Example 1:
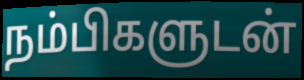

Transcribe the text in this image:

நம்பிகளுடன்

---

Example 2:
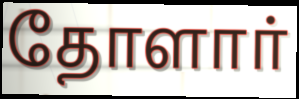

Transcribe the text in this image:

தோளார்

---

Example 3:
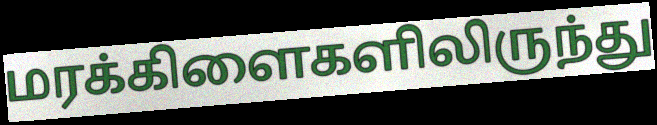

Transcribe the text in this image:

மரக்கிளைகளிலிருந்து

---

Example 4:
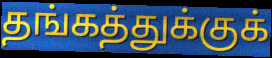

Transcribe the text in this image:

தங்கத்துக்குக்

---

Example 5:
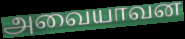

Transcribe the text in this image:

அவையாவன